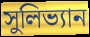
সুলিভ্যান